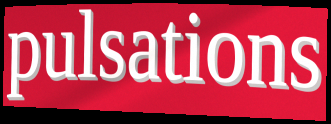
pulsations